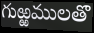
గుఱ్ఱములతొ